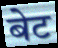
बेट